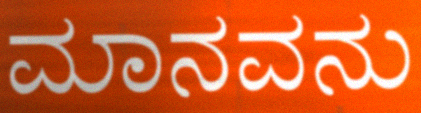
ಮಾನವನು